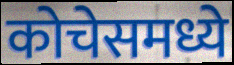
कोचेसमध्ये